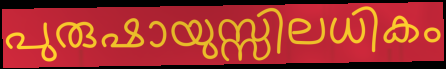
പുരുഷായുസ്സിലധികം